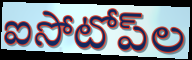
ఐసోటోప్‌ల